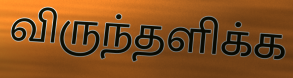
விருந்தளிக்க